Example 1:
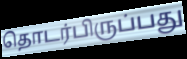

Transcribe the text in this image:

தொடர்பிருப்பது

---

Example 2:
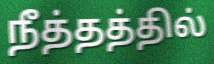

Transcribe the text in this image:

நீத்தத்தில்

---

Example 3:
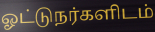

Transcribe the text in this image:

ஓட்டுநர்களிடம்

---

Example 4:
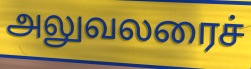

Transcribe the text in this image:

அலுவலரைச்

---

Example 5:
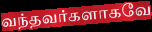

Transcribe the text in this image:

வந்தவர்களாகவே